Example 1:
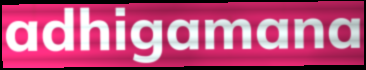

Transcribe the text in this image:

adhigamana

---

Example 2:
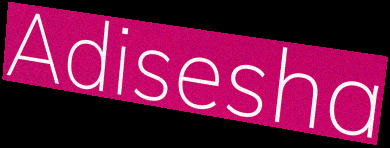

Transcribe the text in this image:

Adisesha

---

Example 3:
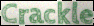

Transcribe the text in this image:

Crackle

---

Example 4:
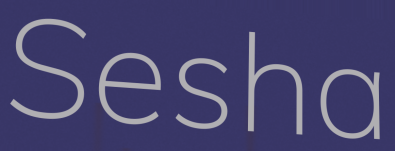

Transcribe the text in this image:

Sesha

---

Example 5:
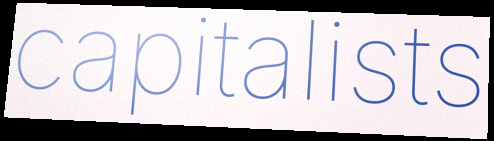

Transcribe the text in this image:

capitalists